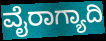
ವೈರಾಗ್ಯಾದಿ